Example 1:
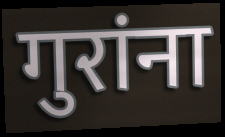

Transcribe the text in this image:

गुरांना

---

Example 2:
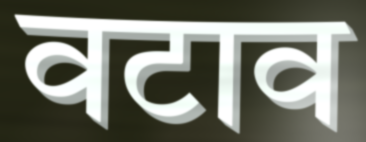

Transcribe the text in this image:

वटाव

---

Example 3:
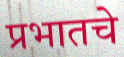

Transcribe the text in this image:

प्रभातचे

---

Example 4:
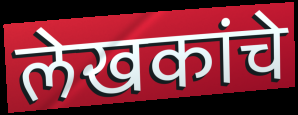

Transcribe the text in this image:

लेखकांचे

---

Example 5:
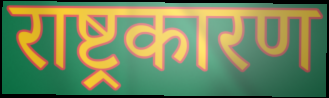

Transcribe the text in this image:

राष्ट्रकारण